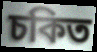
চকিত